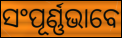
ସଂପୂର୍ଣ୍ଣଭାବେ